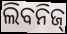
ଲିବନିଜ୍